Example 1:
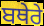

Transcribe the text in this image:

ਬਥੇਰੇ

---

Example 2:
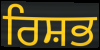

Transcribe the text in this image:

ਰਿਸ਼ਭ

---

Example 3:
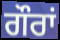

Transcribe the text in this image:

ਗੌਰਾਂ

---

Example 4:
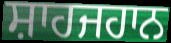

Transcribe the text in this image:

ਸ਼ਾਹਜਹਾਨ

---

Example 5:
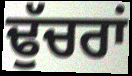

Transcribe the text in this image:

ਢੁੱਚਰਾਂ